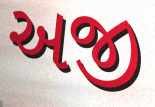
અજી